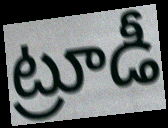
ట్రూడీ